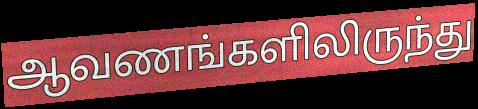
ஆவணங்களிலிருந்து